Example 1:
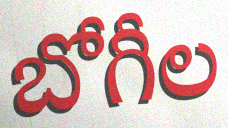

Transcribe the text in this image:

బోగీల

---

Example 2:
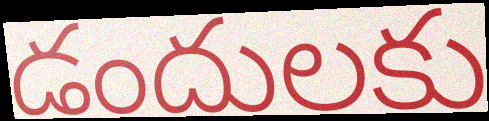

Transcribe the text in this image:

డందులకు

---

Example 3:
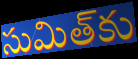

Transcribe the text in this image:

సుమిత్‌కు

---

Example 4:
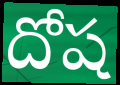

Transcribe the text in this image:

దోష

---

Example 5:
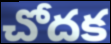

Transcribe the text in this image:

చోదక